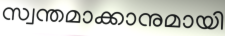
സ്വന്തമാക്കാനുമായി